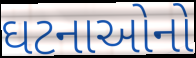
ઘટનાઓનો